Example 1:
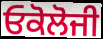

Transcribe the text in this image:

ਓਕੋਲੋਜੀ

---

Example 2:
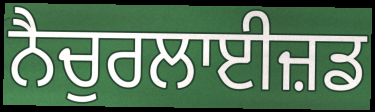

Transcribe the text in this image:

ਨੈਚੁਰਲਾਈਜ਼ਡ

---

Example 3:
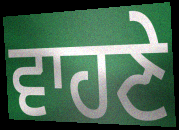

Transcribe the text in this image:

ਵਾਹਣੇ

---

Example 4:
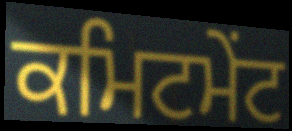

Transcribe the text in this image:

ਕਮਿਟਮੇਂਟ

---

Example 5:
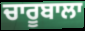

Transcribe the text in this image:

ਚਾਰੂਬਾਲਾ